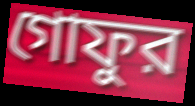
গোফুর